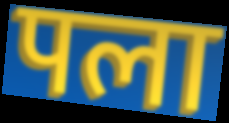
पला